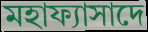
মহাফ্যাসাদে